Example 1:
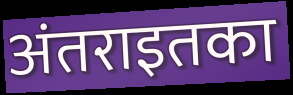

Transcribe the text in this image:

अंतराइतका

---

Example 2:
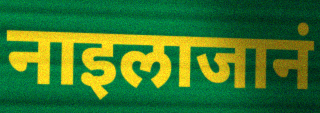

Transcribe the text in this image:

नाइलाजानं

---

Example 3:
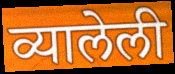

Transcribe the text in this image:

व्यालेली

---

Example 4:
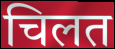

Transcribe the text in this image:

चिलत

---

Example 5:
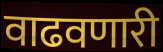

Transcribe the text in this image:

वाढवणारी